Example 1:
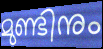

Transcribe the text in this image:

മുണ്ടിനും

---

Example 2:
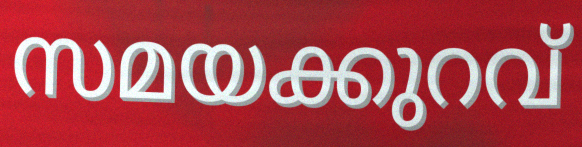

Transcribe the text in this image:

സമയക്കുറവ്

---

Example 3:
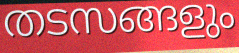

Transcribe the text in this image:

തടസങ്ങളും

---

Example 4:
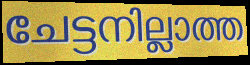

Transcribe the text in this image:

ചേട്ടനില്ലാത്ത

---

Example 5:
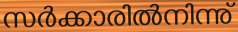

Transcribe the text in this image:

സർക്കാരിൽനിന്നു്